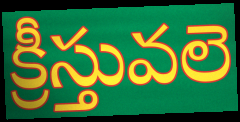
క్రీస్తువలె